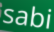
sabi